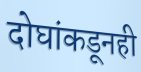
दोघांकडूनही